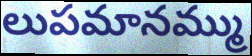
లుపమానమ్ము